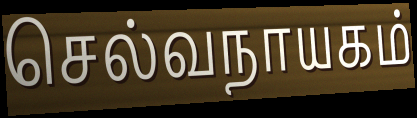
செல்வநாயகம்